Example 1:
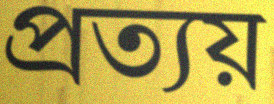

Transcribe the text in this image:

প্ৰত্যয়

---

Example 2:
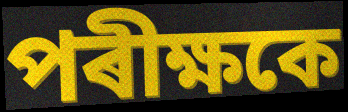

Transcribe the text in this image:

পৰীক্ষকে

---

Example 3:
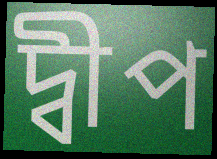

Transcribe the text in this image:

দ্বীপ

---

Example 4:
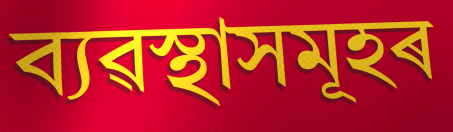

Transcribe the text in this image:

ব্যৱস্থাসমূহৰ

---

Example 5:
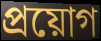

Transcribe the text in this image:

প্ৰয়োগ